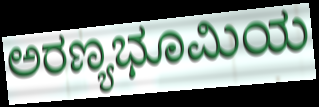
ಅರಣ್ಯಭೂಮಿಯ